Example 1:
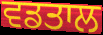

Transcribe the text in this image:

ਵਡਤਾਲ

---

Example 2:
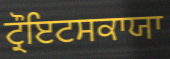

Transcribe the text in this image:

ਟ੍ਰੌਇਟਸਕਾਯਾ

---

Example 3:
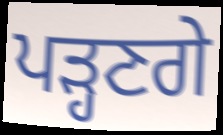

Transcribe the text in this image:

ਪੜ੍ਹਣਗੇ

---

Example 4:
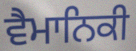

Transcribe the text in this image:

ਵੈਮਾਨਿਕੀ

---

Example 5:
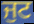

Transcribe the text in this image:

ਜੁਟ